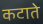
कटाते